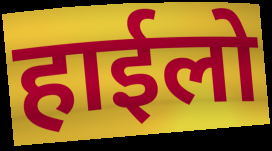
हाईलो